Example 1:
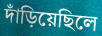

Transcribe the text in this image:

দাঁড়িয়েছিলে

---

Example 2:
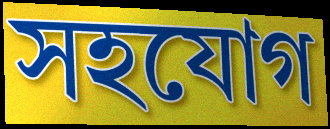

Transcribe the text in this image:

সহযোগ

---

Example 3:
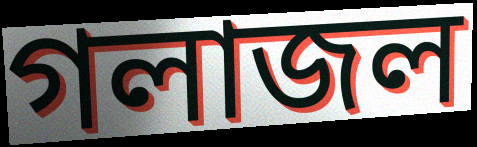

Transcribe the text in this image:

গলাজল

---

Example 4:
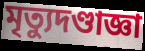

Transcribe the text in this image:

মৃত্যুদণ্ডাজ্ঞা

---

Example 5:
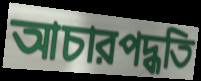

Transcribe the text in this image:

আচারপদ্ধতি